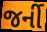
જર્ની